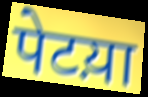
पेटय़ा